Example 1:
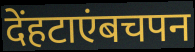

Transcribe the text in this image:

देंहटाएंबचपन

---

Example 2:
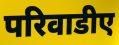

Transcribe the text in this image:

परिवाडीए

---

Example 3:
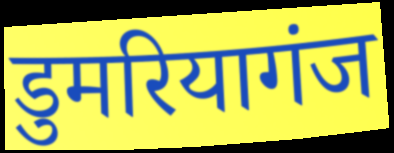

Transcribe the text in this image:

डुमरियागंज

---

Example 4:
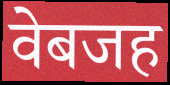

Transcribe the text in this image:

वेबजह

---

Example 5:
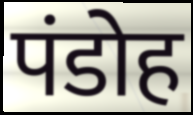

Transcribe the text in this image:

पंडोह